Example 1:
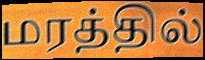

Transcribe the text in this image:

மரத்தில்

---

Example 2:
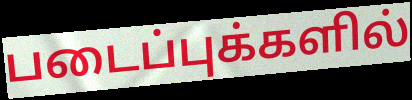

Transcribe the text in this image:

படைப்புக்களில்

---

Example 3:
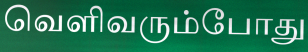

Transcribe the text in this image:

வெளிவரும்போது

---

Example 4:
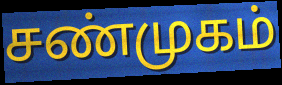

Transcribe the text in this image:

சண்முகம்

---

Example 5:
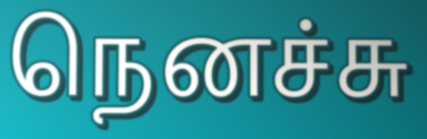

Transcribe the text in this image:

நெனச்சு